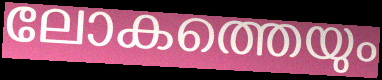
ലോകത്തെയും